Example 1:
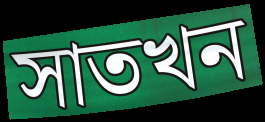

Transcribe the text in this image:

সাতখন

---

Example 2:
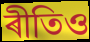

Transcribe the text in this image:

ৰীতিও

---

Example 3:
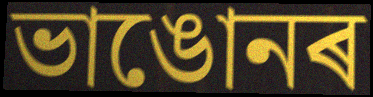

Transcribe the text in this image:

ভাঙোনৰ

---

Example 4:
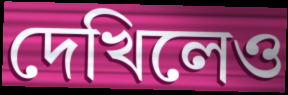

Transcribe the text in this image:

দেখিলেও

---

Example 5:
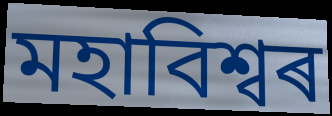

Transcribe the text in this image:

মহাবিশ্বৰ